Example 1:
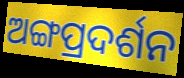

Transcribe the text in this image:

ଅଙ୍ଗପ୍ରଦର୍ଶନ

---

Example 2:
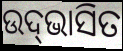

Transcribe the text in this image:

ଉଦ୍‌ଭାସିତ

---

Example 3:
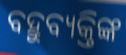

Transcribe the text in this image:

ବହୁବ୍ୟକ୍ତିଙ୍କ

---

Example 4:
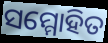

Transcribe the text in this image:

ସମ୍ମୋହିତ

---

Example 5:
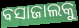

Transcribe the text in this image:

ବସାଜାଲକୁ